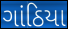
ગાંઠિયા